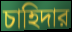
চাহিদার